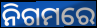
ନିଗମରେ